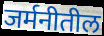
जर्मनीतील